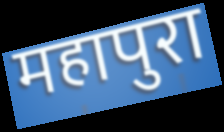
महापुरा